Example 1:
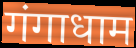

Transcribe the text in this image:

गंगाधाम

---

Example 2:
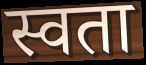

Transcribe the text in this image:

स्वता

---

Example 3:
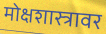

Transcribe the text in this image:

मोक्षशास्त्रावर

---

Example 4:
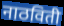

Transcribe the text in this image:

नाठविती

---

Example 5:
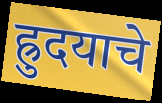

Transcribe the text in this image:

ह्रुदयाचे